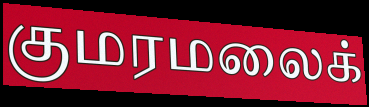
குமரமலைக்